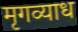
मृगव्याध